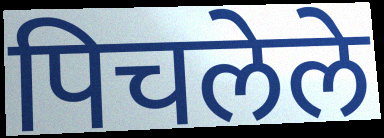
पिचलेले